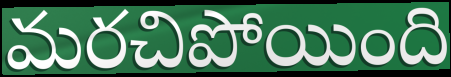
మరచిపోయింది